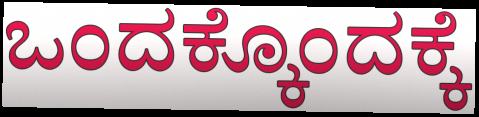
ಒಂದಕ್ಕೊಂದಕ್ಕೆ